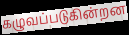
கழுவப்படுகின்றன